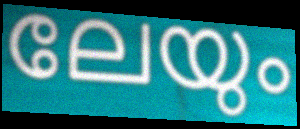
ലേയും